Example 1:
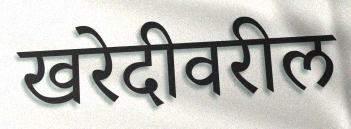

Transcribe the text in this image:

खरेदीवरील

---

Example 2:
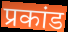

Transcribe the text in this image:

प्रकांड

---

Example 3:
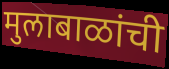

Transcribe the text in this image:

मुलाबाळांची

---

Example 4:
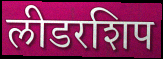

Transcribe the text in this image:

लीडरशिप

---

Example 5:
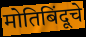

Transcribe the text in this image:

मोतिबिंदूचे